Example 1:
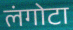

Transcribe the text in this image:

लंगोटा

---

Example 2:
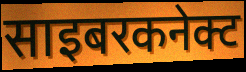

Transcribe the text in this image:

साइबरकनेक्ट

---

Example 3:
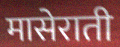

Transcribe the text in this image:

मासेराती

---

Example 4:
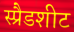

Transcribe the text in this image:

स्प्रैडशीट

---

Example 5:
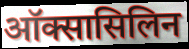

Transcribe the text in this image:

ऑक्सासिलिन